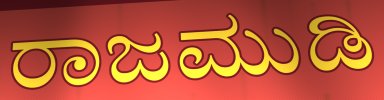
ರಾಜಮುಡಿ